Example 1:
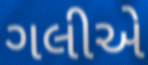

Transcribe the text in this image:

ગલીએ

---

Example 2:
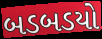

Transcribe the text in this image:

બડબડયો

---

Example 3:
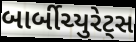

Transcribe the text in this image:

બાર્બીચ્યુરેટ્સ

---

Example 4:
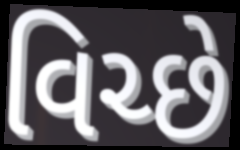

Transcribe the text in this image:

વિચ્છે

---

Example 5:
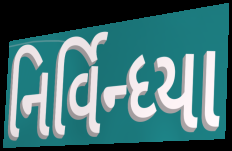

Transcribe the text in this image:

નિર્વિન્ધ્યા